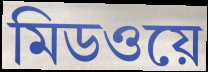
মিডওয়ে